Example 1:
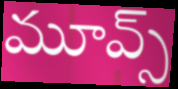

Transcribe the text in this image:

మూవ్స్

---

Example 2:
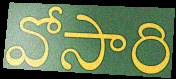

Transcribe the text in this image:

వోసారి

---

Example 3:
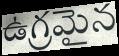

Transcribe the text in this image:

ఉగ్రమైన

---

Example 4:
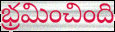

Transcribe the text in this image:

భ్రమించింది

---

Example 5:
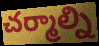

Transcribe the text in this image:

చర్మాల్ని